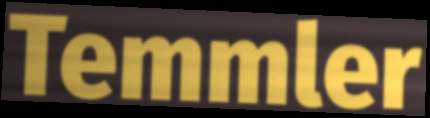
Temmler